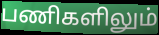
பணிகளிலும்